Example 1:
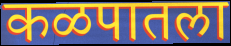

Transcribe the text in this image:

कळपातला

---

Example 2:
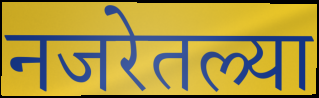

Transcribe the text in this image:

नजरेतल्या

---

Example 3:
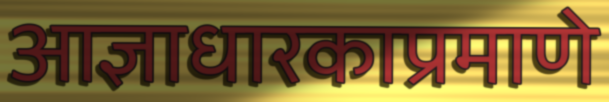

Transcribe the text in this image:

आज्ञाधारकाप्रमाणे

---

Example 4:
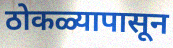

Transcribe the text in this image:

ठोकळ्यापासून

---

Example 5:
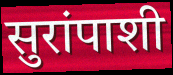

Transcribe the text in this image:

सुरांपाशी